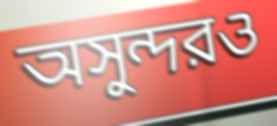
অসুন্দরও